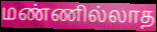
மண்ணில்லாத